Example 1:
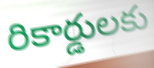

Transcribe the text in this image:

రికార్డులకు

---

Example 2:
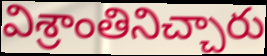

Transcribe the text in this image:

విశ్రాంతినిచ్చారు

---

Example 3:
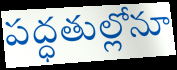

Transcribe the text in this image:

పద్ధతుల్లోనూ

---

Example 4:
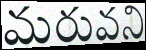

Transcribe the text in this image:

మరువని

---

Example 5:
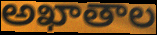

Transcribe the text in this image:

అఖాతాల